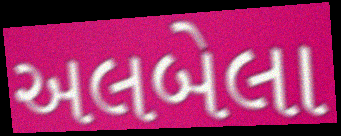
અલબેલા